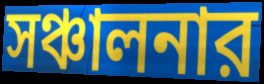
সঞ্চালনার